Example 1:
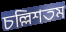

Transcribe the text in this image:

চল্লিশতম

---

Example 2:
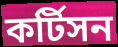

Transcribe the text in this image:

কর্টিসন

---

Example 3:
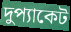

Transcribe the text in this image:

দুপ্যাকেট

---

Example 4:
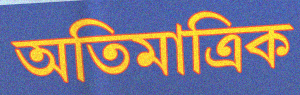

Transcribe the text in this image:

অতিমাত্রিক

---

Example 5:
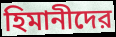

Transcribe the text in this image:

হিমানীদের